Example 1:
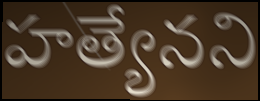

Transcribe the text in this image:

హత్యేనని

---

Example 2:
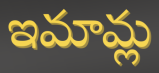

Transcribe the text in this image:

ఇమామ్ల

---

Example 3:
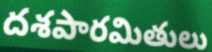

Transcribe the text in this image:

దశపారమితులు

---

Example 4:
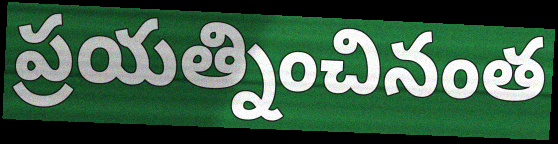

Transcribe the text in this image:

ప్రయత్నించినంత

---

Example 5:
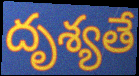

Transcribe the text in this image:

దృశ్యతే